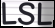
LSL